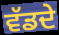
ਵੱਡਦੇ